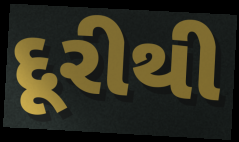
દૂરીથી